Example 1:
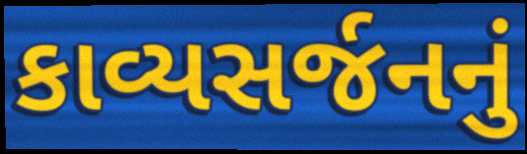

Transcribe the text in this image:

કાવ્યસર્જનનું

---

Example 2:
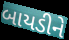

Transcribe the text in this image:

બાયડીને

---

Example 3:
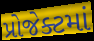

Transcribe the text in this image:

પ્રોજેક્ટમાં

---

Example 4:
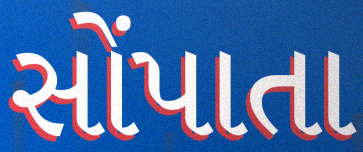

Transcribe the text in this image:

સોંપાતા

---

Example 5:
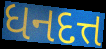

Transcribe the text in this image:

ધનદત્ત